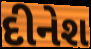
દીનેશ